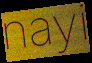
nayi